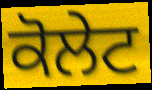
ਕੋਲੇਟ